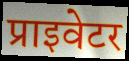
प्राइवेटर